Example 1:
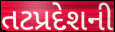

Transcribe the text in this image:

તટપ્રદેશની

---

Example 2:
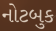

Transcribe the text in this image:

નોટબુક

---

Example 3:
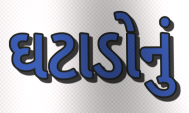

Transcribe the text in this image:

ઘટાડોનું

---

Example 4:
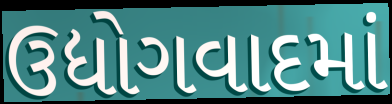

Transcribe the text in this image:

ઉદ્યોગવાદમાં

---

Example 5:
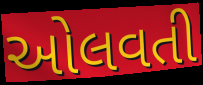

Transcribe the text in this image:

ઓલવતી